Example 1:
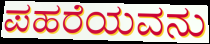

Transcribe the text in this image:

ಪಹರೆಯವನು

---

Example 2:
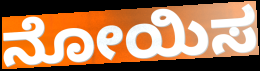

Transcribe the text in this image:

ನೋಯಿಸ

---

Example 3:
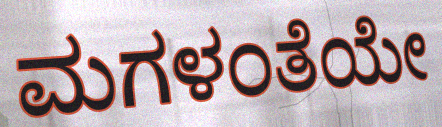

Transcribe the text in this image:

ಮಗಳಂತೆಯೇ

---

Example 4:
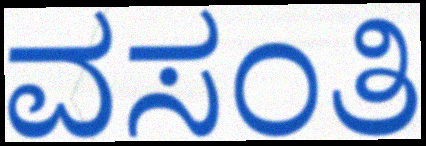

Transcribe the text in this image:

ವಸಂತಿ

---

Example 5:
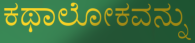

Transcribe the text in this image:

ಕಥಾಲೋಕವನ್ನು